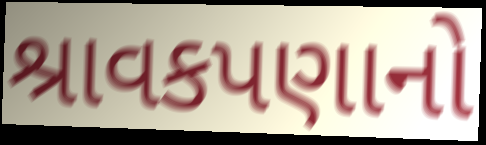
શ્રાવકપણાનો